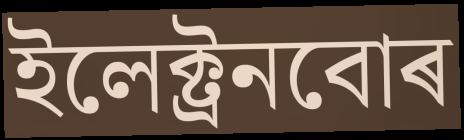
ইলেক্ট্ৰনবোৰ